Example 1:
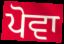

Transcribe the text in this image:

ਪੋਵਾ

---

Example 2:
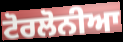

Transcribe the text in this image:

ਟੋਰਲੋਨੀਆ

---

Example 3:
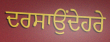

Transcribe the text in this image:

ਦਰਸਾਉਂਦੇਹਰੇ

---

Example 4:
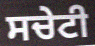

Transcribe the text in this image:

ਸਚੇਟੀ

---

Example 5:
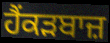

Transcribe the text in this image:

ਹੈਂਕੜਬਾਜ਼